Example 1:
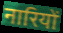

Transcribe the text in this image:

नारियों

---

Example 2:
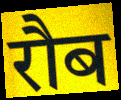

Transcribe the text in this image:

रौब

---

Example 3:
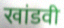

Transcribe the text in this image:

खांडवी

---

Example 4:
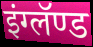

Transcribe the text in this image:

इंग्लॅण्ड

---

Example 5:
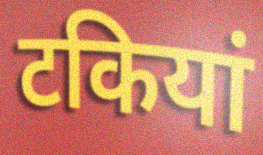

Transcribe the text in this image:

टकियां